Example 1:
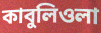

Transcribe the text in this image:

কাবুলিওলা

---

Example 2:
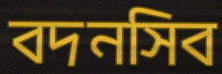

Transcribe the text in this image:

বদনসিব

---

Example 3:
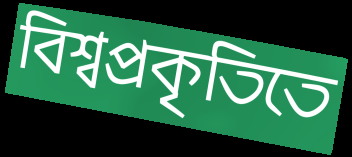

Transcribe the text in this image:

বিশ্বপ্রকৃতিতে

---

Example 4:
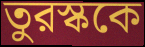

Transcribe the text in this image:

তুরস্ককে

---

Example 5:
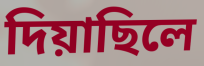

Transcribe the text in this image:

দিয়াছিলে